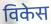
विकेस